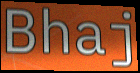
Bhaj